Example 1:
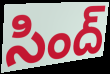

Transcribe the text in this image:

సింద్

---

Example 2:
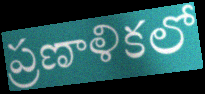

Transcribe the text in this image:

ప్రణాళికలో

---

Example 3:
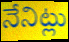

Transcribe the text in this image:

నేనిట్లు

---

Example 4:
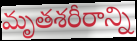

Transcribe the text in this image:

మృతశరీరాన్ని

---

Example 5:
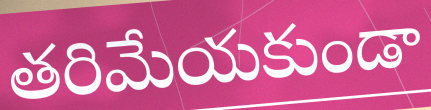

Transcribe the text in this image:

తరిమేయకుండా